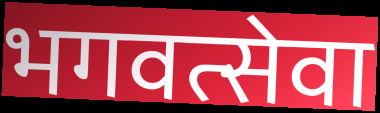
भगवत्सेवा